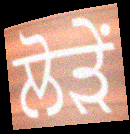
ਲੋੜੇਂ